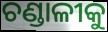
ଚଣ୍ଡାଳୀକୁ